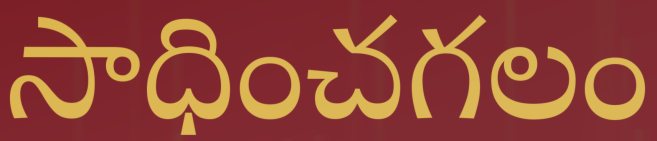
సాధించగలం